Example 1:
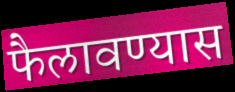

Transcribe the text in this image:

फैलावण्यास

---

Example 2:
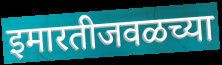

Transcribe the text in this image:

इमारतीजवळच्या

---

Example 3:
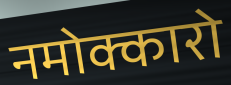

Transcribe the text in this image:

नमोक्कारो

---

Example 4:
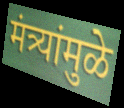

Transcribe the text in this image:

मंत्र्यांमुळे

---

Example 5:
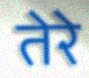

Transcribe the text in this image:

तेरे